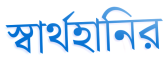
স্বার্থহানির